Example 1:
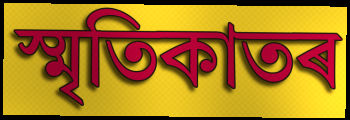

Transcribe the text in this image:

স্মৃতিকাতৰ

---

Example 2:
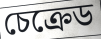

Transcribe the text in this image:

চেক্ৰেড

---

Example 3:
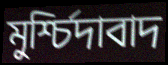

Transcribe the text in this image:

মুৰ্শ্চিদাবাদ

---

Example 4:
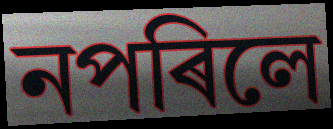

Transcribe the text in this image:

নপৰিলে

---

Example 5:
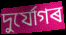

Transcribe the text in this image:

দুৰ্যোগৰ